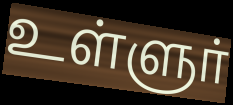
உள்ளுர்